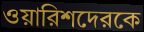
ওয়ারিশদেরকে